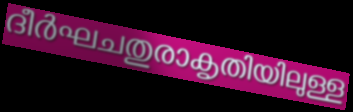
ദീർഘചതുരാകൃതിയിലുള്ള